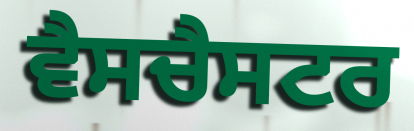
ਵੈਸਚੈਸਟਰ